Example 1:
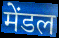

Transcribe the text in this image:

मेंडल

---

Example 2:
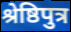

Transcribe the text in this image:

श्रेष्ठिपुत्र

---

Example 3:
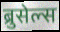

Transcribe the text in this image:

ब्रुसेल्स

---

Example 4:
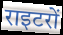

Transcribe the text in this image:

राइटरों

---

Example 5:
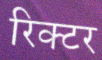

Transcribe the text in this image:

रिक्टर